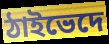
ঠাইভেদে